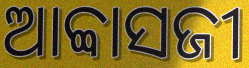
ଆବ୍ବାସଜୀ